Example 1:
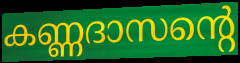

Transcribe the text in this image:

കണ്ണദാസന്റെ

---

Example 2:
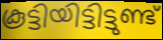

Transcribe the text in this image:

കൂട്ടിയിട്ടിട്ടുണ്ട്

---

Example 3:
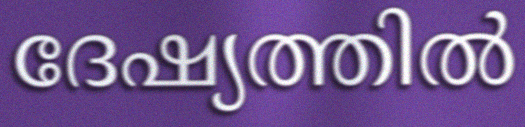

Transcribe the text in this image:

ദേഷ്യത്തിൽ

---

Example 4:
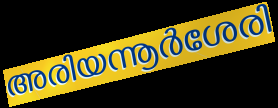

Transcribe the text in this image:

അരിയന്നൂർശേരി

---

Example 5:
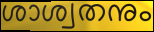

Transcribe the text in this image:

ശാശ്വതനും